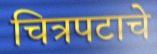
चित्रपटाचे